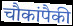
चौकांपैकी